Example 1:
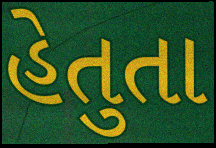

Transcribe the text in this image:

હેતુતા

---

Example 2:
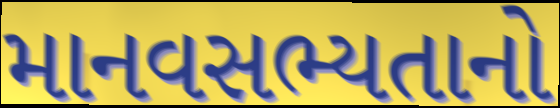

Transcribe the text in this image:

માનવસભ્યતાનો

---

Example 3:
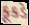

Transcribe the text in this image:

કૂકડે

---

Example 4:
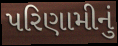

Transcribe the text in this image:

પરિણામીનું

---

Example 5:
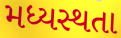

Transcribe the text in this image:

મધ્યસ્થતા